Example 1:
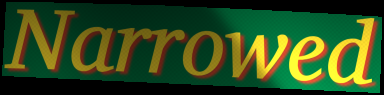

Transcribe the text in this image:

Narrowed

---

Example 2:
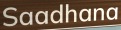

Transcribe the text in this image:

Saadhana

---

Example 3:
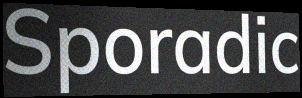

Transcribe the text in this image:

Sporadic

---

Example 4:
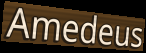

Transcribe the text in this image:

Amedeus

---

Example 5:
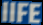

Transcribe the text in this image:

IIFE